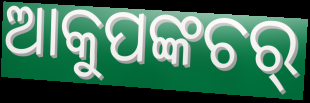
ଆକୁପଙ୍କଚର୍